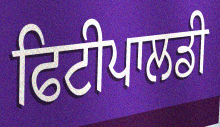
ਫਿਟੀਪਾਲਡੀ